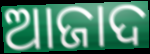
ଆଜାଦ